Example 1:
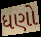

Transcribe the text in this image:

ધણો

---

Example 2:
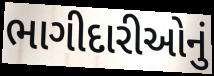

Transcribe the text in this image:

ભાગીદારીઓનું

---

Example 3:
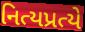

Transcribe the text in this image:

નિત્યપ્રત્યે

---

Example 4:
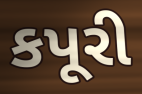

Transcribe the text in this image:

કપૂરી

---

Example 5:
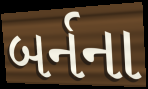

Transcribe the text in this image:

બર્નના